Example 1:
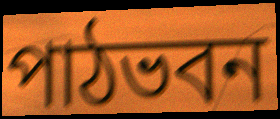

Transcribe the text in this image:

পাঠভবন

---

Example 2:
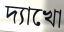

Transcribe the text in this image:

দ্যাখো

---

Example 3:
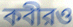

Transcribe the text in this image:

কবীরও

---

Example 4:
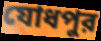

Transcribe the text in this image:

যোধপুর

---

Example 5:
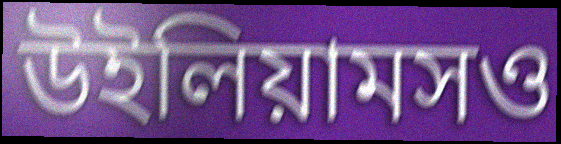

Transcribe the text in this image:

উইলিয়ামসও